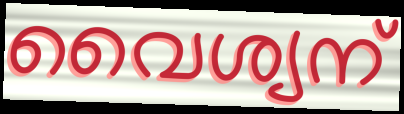
വൈശ്യന്